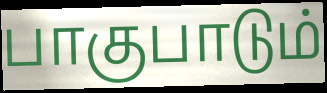
பாகுபாடும்